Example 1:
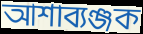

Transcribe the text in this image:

আশাব্যঞ্জক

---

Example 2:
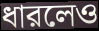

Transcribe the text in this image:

ধারলেও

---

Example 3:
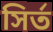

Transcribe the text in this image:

সির্ত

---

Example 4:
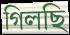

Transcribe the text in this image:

গিলছি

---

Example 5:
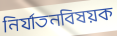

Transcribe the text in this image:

নির্যাতনবিষয়ক